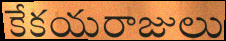
కేకయరాజులు